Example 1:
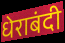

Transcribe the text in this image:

धेराबंदी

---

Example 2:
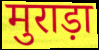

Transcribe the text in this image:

मुराड़ा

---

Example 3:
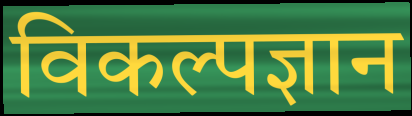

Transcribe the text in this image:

विकल्पज्ञान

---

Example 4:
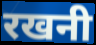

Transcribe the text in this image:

रखनी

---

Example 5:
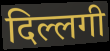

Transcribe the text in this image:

दिल्‍लगी